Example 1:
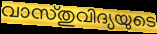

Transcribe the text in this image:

വാസ്തുവിദ്യയുടെ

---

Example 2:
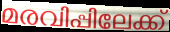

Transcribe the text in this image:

മരവിപ്പിലേക്ക്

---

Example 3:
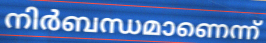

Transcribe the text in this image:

നിർബന്ധമാണെന്ന്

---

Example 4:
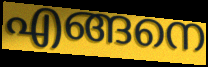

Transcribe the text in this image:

എങ്ങനെ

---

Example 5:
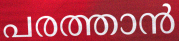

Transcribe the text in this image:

പരത്താൻ